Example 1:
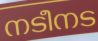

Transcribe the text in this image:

നടീനട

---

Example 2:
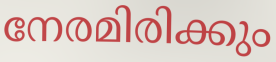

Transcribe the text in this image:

നേരമിരിക്കും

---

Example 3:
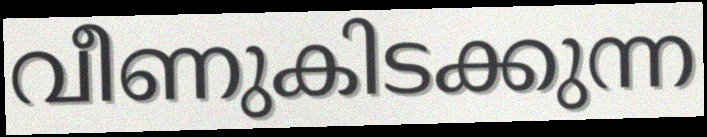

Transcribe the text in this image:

വീണുകിടക്കുന്ന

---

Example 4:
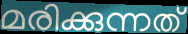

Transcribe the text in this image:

മരിക്കുന്നത്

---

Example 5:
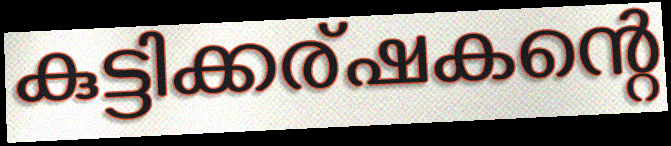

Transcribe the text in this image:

കുട്ടിക്കര്ഷകന്റെ